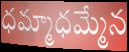
ధమ్మాధమ్మేన